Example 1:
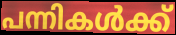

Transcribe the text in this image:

പന്നികൾക്ക്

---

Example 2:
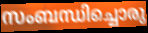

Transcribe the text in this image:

സംബന്ധിച്ചൊരു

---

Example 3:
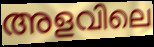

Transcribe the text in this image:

അളവിലെ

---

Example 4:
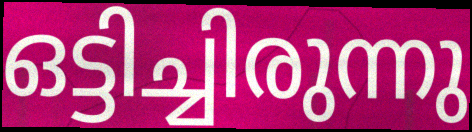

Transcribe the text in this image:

ഒട്ടിച്ചിരുന്നു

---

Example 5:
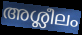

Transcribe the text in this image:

അശ്ലീലം